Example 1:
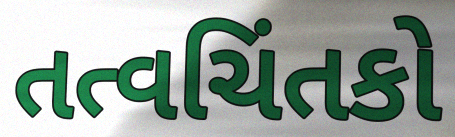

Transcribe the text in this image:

તત્વચિંતકો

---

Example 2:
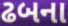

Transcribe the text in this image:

ઢબના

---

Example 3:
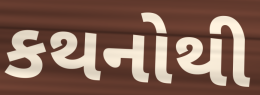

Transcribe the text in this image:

કથનોથી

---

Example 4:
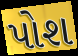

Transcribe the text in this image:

પોશ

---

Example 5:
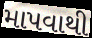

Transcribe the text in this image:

માપવાથી